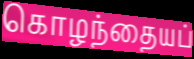
கொழந்தையப்